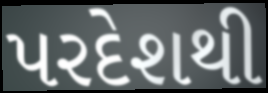
પરદેશથી